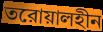
তরোয়ালহীন